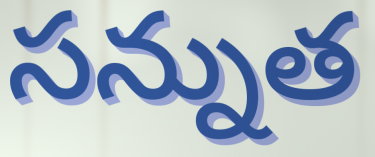
సన్నుత